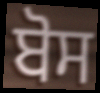
ਬੋਸ